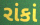
રાંકાં